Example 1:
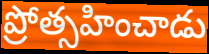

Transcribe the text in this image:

ప్రోత్సహించాడు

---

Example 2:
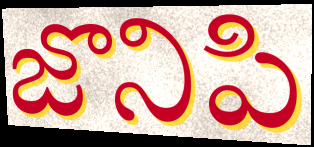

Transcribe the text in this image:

జొనిపి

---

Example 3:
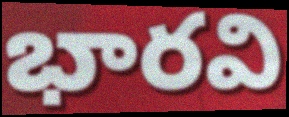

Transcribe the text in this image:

భారవి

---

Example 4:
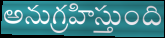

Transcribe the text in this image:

అనుగ్రహిస్తుంది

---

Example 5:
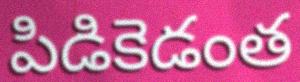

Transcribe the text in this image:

పిడికెడంత